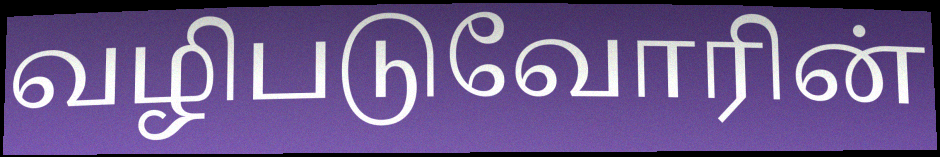
வழிபடுவோரின்